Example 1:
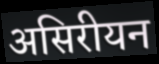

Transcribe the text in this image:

असिरीयन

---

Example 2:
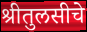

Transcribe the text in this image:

श्रीतुलसीचे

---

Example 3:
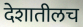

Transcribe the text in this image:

देशातीलच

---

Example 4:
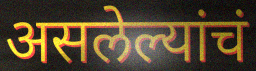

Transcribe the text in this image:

असलेल्यांचं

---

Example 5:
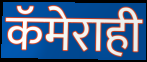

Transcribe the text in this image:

कॅमेराही